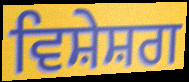
ਵਿਸ਼ੇਸ਼ਗ